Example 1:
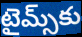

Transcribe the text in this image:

టైమ్స్‌కు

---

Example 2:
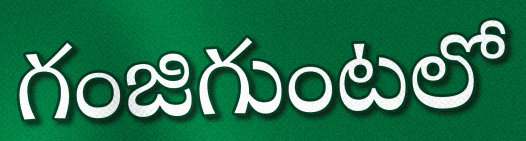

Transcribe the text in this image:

గంజిగుంటలో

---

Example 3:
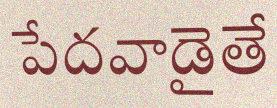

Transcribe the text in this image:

పేదవాడైతే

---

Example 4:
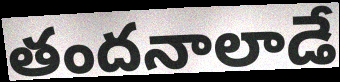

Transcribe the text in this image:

తందనాలాడే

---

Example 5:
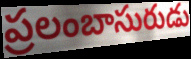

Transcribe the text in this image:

ప్రలంబాసురుడు